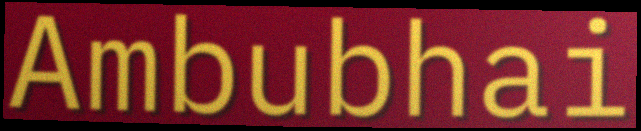
Ambubhai